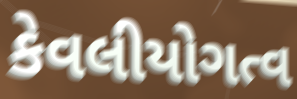
કેવલીયોગત્વ